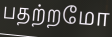
பதற்றமோ